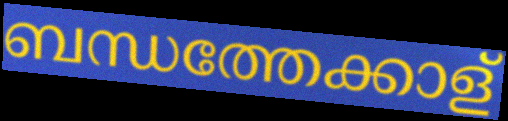
ബന്ധത്തേക്കാള്